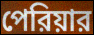
পেরিয়ার